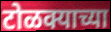
टोळक्याच्या